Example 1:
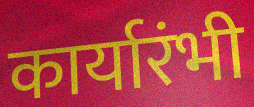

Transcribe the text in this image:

कार्यारंभी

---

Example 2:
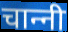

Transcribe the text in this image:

चान्नी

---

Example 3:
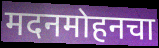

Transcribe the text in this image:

मदनमोहनचा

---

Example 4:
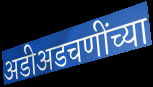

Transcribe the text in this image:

अडीअडचणींच्या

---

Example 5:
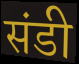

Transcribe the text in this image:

संडी